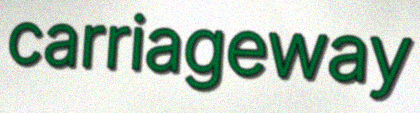
carriageway